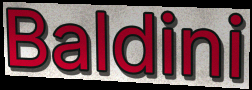
Baldini